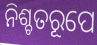
ନିଶ୍ଚତରୂପେ